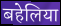
बहेलिया